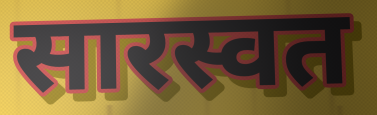
सारस्वत